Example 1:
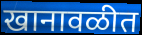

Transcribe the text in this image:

खानावळीत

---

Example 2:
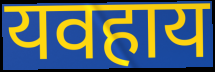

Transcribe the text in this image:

यवहाय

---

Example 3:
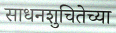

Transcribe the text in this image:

साधनशुचितेच्या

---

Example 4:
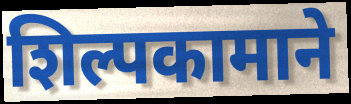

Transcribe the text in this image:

शिल्पकामाने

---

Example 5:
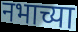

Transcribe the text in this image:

नभाच्या